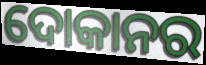
ଦୋକାନର